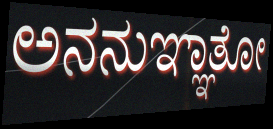
ಅನನುಞ್ಞಾತೋ